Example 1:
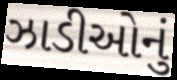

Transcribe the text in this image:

ઝાડીઓનું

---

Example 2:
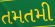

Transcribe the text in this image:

તમતમી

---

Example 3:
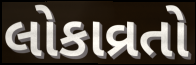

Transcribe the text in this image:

લોકાવ્રતો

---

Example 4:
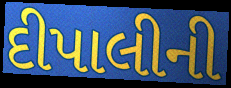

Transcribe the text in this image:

દીપાલીની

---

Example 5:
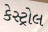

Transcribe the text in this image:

કેસ્ટ્રોલ